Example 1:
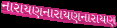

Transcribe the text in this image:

નારાયણનારાયણનારાયણ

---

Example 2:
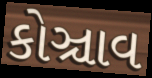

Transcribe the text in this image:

કોઞ્ચાવ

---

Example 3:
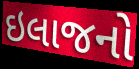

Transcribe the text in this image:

ઇલાજનો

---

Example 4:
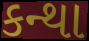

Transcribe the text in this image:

કન્થા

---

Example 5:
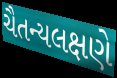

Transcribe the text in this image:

ચૈતન્યલક્ષણે